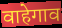
वाहेगाव